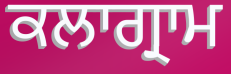
ਕਲਾਗ੍ਰਾਮ